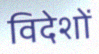
विदेशों